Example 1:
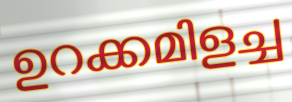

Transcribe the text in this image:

ഉറക്കമിളച്ച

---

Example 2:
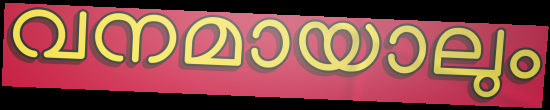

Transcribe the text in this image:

വനമായാലും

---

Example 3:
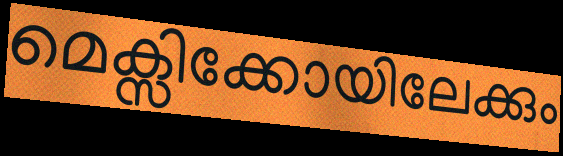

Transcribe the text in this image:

മെക്സിക്കോയിലേക്കും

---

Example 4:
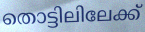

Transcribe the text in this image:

തൊട്ടിലിലേക്ക്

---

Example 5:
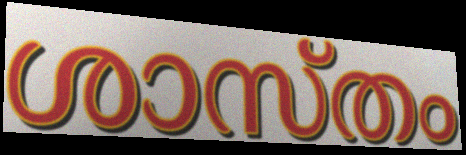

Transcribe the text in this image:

ശാസ്തം